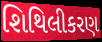
શિથિલીકરણ